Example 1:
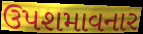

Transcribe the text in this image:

ઉપશમાવનાર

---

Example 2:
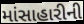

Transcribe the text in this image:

માંસાહારીની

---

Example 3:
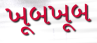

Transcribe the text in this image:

ખૂબખૂબ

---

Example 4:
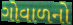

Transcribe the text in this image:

ગોવાળનો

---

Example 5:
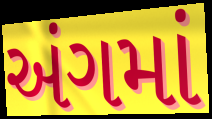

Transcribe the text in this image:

અંગમાં